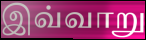
இவ்வாறு